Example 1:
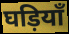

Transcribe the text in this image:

घड़ियाँ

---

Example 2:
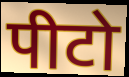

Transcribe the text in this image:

पीटो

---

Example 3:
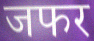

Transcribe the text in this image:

जफर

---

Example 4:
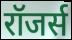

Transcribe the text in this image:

रॉजर्स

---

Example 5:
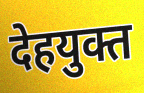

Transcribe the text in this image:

देहयुक्त